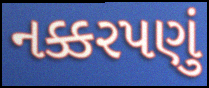
નક્કરપણું